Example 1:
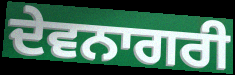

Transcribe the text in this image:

ਦੇਵਨਾਗਰੀ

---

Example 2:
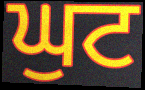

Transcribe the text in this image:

ਘੁਟ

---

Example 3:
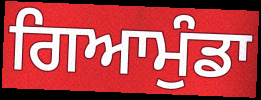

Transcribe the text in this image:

ਗਿਆਮੁੰਡਾ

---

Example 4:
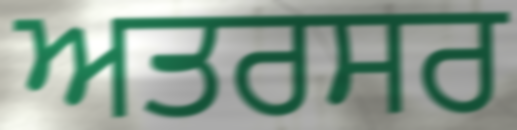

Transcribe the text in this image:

ਅਤਰਸਰ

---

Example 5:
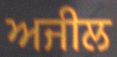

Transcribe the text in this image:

ਅਜੀਲ